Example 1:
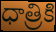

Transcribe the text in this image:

ధాత్రికి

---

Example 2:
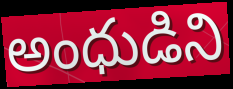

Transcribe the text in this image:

అంధుడిని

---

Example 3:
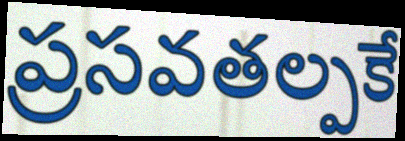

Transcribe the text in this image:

ప్రసవతల్పకే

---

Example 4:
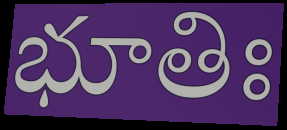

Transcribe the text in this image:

భూతిః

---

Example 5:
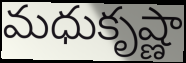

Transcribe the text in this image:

మధుకృష్ణా